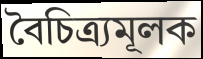
বৈচিত্ৰ্যমূলক